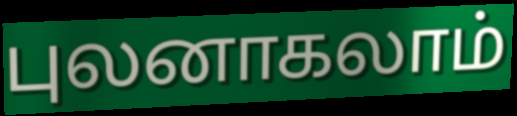
புலனாகலாம்